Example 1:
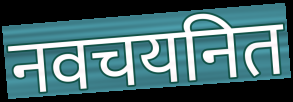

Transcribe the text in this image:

नवचयनित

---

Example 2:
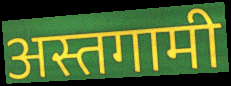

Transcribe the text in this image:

अस्तगामी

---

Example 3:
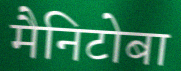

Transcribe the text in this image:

मैनिटोबा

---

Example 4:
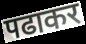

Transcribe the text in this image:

पढाकर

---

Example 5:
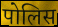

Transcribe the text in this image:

पोलिस